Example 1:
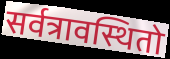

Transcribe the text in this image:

सर्वत्रावस्थितो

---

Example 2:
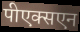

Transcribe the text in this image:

पीएक्सएन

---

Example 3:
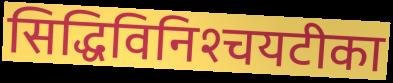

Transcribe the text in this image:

सिद्धिविनिश्चयटीका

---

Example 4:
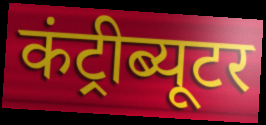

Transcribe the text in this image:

कंट्रीब्यूटर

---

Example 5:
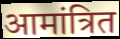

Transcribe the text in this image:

आमांत्रित